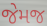
જેમજ